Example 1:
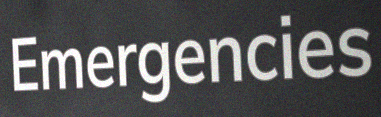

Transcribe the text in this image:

Emergencies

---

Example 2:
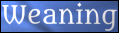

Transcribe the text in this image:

Weaning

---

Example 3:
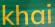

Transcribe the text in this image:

khai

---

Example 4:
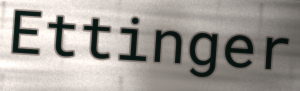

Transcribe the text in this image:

Ettinger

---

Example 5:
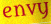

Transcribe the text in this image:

envy